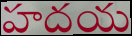
హదయ